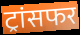
ट्रांसफर